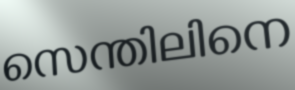
സെന്തിലിനെ